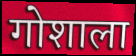
गोशाला